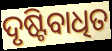
ଦୃଷ୍ଟିବାଧିତ